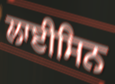
ਲਾਈਸਿਨ